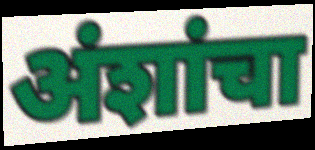
अंशांचा